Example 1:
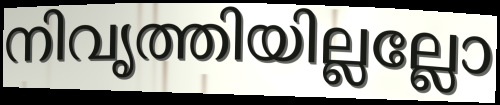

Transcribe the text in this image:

നിവൃത്തിയില്ലല്ലോ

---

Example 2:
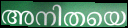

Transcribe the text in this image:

അനിതയെ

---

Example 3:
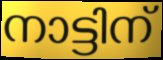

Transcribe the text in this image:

നാട്ടിന്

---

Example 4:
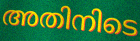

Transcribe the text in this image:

അതിനിടെ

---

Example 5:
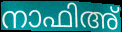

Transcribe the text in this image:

നാഫിഅ്